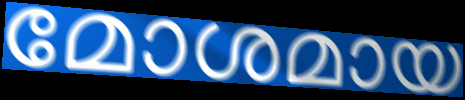
മോശമായ